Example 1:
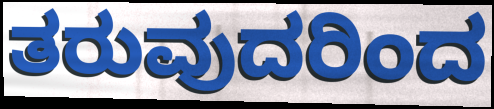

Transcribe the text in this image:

ತರುವುದರಿಂದ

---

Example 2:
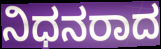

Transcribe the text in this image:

ನಿಧನರಾದ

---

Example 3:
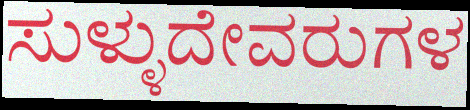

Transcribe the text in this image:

ಸುಳ್ಳುದೇವರುಗಳ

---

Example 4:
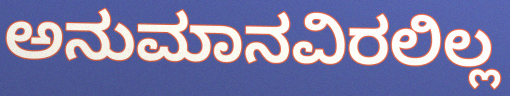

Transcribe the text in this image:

ಅನುಮಾನವಿರಲಿಲ್ಲ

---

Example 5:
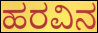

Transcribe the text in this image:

ಹರವಿನ